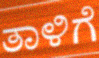
ತಾಳಿಗೆ